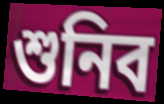
শুনিব